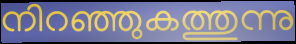
നിറഞ്ഞുകത്തുന്നു